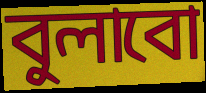
বুলাবো